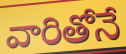
వారితోనే